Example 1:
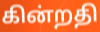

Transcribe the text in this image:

கின்றதி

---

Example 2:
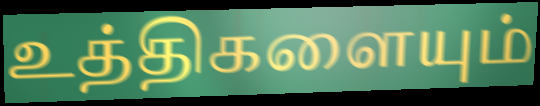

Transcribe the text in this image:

உத்திகளையும்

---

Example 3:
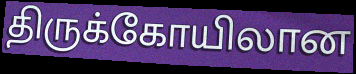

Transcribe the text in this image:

திருக்கோயிலான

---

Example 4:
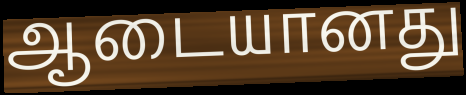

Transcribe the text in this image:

ஆடையானது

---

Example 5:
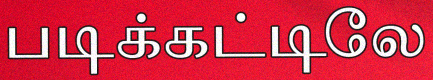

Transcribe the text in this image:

படிக்கட்டிலே